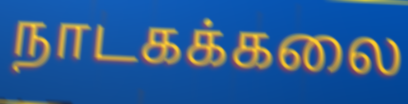
நாடகக்கலை